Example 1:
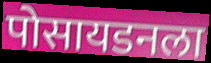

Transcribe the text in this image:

पोसायडनला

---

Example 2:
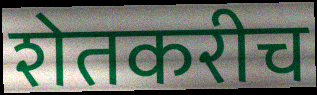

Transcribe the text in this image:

शेतकरीच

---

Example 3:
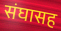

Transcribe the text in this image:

संघासह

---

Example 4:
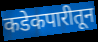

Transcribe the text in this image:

कडेकपारीतून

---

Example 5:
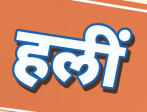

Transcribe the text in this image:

हलीं